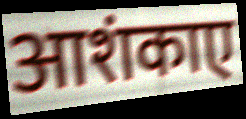
आशंकाए